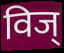
विज्